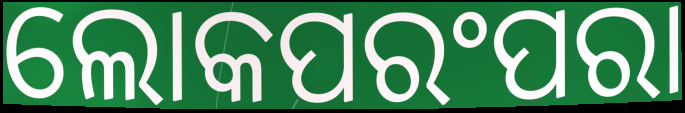
ଲୋକପରଂପରା